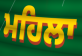
ਮਹਿਲਾ